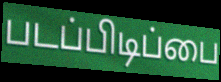
படப்பிடிப்பை